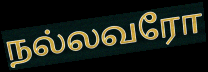
நல்லவரோ